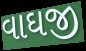
વાઘજી